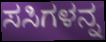
ಸಸಿಗಳನ್ನ